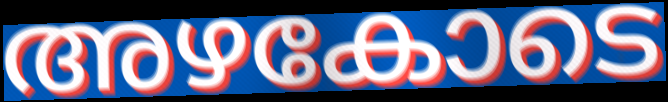
അഴകോടെ